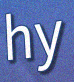
hy